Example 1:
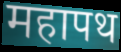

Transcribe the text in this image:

महापथ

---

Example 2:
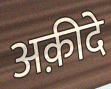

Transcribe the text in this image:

अक़ीदे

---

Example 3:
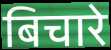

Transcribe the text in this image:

बिचारे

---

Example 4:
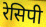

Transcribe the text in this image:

रेसिपी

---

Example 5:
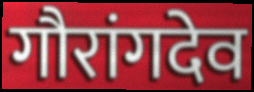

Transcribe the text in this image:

गौरांगदेव